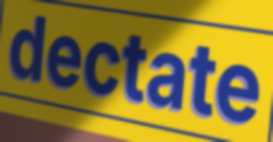
dectate